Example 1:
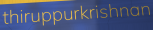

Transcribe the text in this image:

thiruppurkrishnan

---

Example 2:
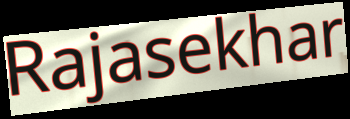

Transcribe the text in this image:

Rajasekhar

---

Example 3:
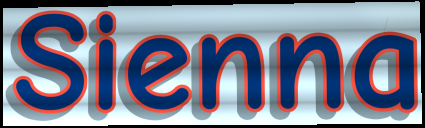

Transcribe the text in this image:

Sienna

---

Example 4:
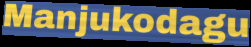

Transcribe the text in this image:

Manjukodagu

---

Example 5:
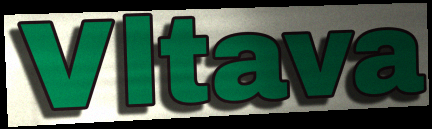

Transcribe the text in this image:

Vltava